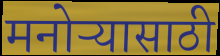
मनोऱ्यासाठी